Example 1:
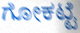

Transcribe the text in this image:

ಗೋಕಟ್ಟೆ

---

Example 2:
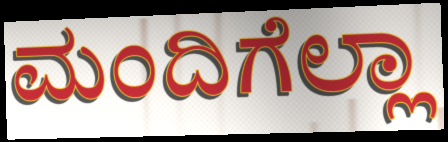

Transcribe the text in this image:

ಮಂದಿಗೆಲ್ಲಾ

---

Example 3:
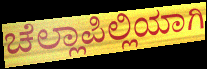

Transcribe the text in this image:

ಚೆಲ್ಲಾಪಿಲ್ಲಿಯಾಗಿ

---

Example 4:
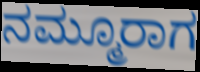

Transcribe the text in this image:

ನಮ್ಮೂರಾಗ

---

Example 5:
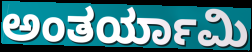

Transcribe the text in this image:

ಅಂತರ್ಯಾಮಿ